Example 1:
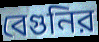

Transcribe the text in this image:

বেগুনির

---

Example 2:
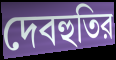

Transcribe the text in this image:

দেবহুতির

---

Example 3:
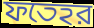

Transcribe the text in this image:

ফতেহর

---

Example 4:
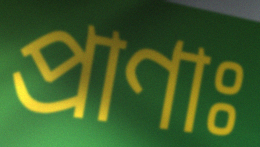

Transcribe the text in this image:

প্রাণাঃ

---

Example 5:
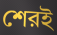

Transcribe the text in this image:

শেরই